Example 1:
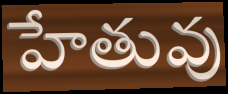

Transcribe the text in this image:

హేతువు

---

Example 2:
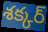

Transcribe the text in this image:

శక్కర్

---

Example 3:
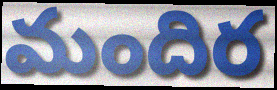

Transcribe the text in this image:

మందిర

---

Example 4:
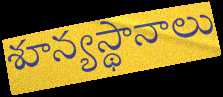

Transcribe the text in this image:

శూన్యస్థానాలు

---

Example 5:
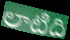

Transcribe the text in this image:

లాటిది